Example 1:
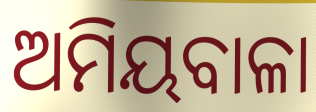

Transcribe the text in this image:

ଅମିୟବାଳା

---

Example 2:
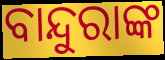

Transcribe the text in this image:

ବାନ୍ଦୁରାଙ୍କ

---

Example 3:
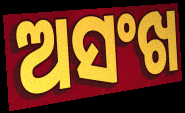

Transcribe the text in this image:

ଅସଂଖ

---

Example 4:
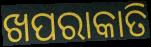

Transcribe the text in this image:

ଖପରାକାତି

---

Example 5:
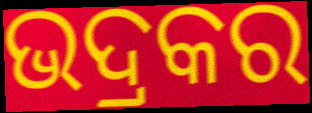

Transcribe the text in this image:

ଭଦ୍ରକର